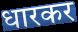
धारकर